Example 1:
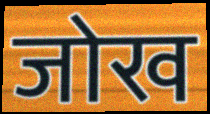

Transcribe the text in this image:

जोख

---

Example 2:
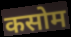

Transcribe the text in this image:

कसोम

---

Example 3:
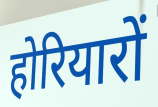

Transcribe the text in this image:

होरियारों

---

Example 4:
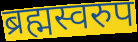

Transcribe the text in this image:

ब्रह्मस्वरुप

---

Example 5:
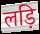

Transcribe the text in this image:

लड़ि